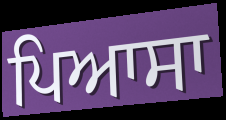
ਪਿਆਸਾ